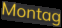
Montag